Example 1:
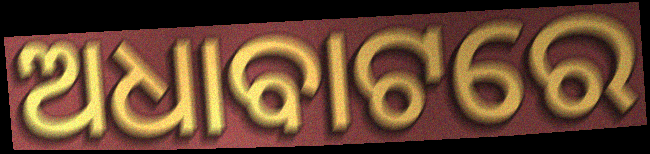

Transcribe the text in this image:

ଅଧାବାଟରେ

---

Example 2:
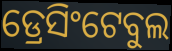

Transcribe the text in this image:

ଡ୍ରେସିଂଟେବୁଲ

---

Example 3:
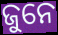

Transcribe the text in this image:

ଜୁନେ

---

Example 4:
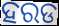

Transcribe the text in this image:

ହରଡ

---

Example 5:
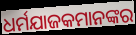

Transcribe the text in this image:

ଧର୍ମଯାଜକମାନଙ୍କର